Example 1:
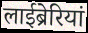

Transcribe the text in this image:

लाईब्रेरियां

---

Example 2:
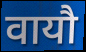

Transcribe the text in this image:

वायौ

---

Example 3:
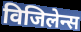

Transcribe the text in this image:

विजिलेन्स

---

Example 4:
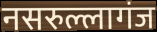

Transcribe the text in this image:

नसरुल्लागंज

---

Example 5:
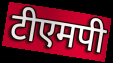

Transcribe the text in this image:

टीएमपी